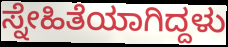
ಸ್ನೇಹಿತೆಯಾಗಿದ್ದಳು